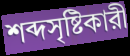
শব্দসৃষ্টিকারী